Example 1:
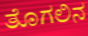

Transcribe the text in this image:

ತೊಗಲಿನ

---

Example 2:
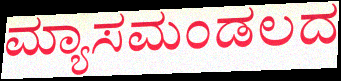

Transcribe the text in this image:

ಮ್ಯಾಸಮಂಡಲದ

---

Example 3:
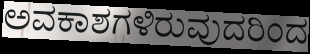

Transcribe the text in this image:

ಅವಕಾಶಗಳಿರುವುದರಿಂದ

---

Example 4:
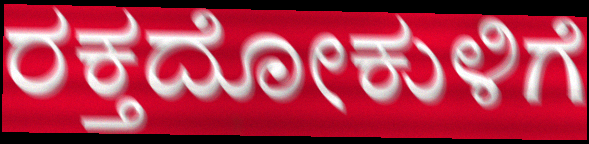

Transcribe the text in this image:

ರಕ್ತದೋಕುಳಿಗೆ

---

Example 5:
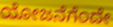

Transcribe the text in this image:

ಯೋಜನೆಗೆಂದೇ